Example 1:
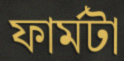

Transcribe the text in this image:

ফার্মটা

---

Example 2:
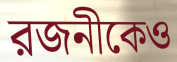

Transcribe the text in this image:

রজনীকেও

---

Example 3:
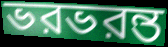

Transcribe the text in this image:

ভরভরন্ত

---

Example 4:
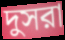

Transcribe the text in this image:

দুসরা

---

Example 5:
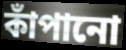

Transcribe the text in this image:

কাঁপানো